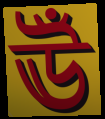
ঊঁ